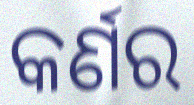
କର୍ଣର